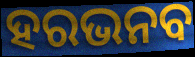
ହରଭନବ